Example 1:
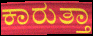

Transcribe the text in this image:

ಕಾರುತ್ತಾ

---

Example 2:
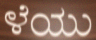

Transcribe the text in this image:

ಳೆಯು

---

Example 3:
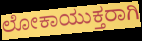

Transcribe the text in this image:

ಲೋಕಾಯುಕ್ತರಾಗಿ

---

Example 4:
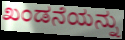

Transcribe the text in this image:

ಖಂಡನೆಯನ್ನು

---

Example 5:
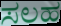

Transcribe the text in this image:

ಸಲಹ